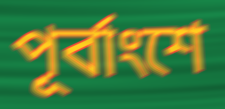
পূর্বাংশে